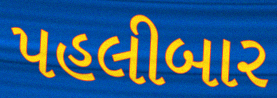
પહલીબાર